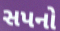
સપનો